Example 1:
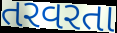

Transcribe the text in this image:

તરવરતા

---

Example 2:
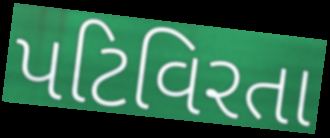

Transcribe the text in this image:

પટિવિરતા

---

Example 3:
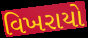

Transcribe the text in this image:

વિખરાયો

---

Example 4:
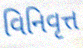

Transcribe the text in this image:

વિનિવૃત્ત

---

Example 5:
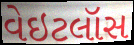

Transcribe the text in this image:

વેઇટલૉસ